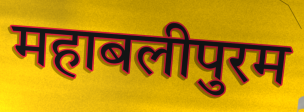
महाबलीपुरम